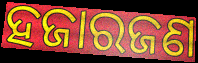
ହଜାରଜଣ